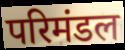
परिमंडल